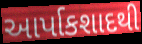
આર્પાકશાદથી